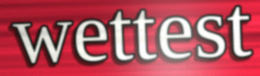
wettest